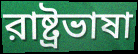
রাষ্ট্রভাষা